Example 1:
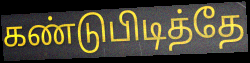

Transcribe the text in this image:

கண்டுபிடித்தே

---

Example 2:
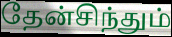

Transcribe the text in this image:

தேன்சிந்தும்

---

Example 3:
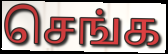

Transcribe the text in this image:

செங்க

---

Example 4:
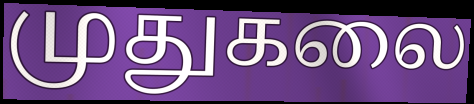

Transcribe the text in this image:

முதுகலை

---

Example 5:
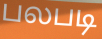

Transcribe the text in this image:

பலபடி